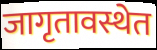
जागृतावस्थेत